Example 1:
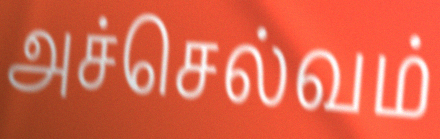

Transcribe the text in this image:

அச்செல்வம்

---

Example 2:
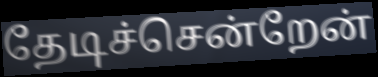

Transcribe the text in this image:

தேடிச்சென்றேன்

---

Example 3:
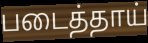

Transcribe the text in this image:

படைத்தாய்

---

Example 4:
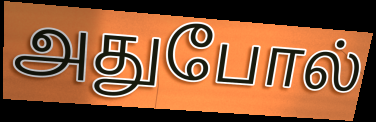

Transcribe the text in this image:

அதுபோல்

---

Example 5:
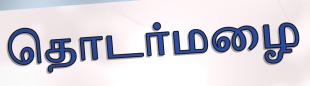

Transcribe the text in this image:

தொடர்மழை